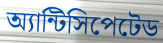
অ্যান্টিসিপেটেড